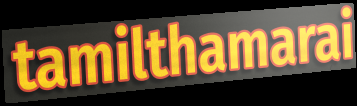
tamilthamarai